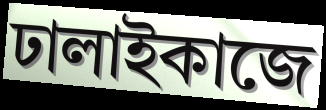
ঢালাইকাজে